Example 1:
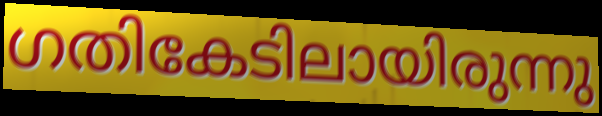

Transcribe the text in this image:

ഗതികേടിലായിരുന്നു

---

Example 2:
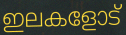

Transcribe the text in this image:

ഇലകളോട്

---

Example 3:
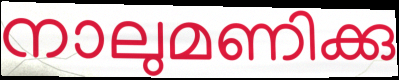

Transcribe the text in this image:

നാലുമണിക്കു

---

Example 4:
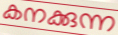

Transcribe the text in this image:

കനക്കുന്ന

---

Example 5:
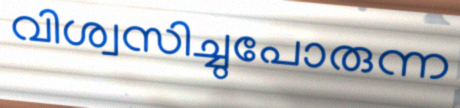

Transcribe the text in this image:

വിശ്വസിച്ചുപോരുന്ന